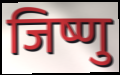
जिष्णु